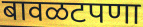
बावळटपणा